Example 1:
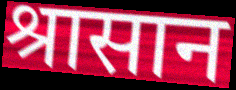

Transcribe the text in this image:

श्रासान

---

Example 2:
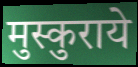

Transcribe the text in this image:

मुस्कुराये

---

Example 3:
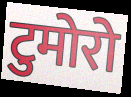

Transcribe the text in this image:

टुमोरो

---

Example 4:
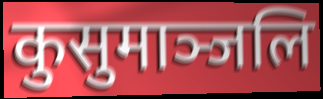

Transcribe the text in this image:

कुसुमाञ्जलि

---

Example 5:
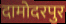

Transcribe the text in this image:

दामोदरपुर